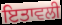
ਇਤਾਵਲੀ